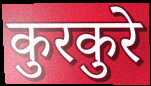
कुरकुरे